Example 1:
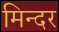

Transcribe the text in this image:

मिन्दर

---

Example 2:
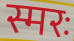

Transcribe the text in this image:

स्मरः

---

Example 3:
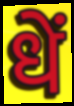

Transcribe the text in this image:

धें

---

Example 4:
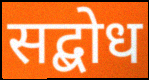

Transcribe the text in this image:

सद्बोध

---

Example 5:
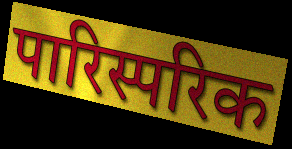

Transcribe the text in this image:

पारिस्परिक